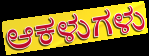
ಆಕಳುಗಳು